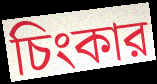
চিংকার